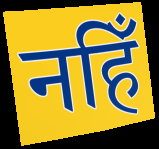
नहिँ